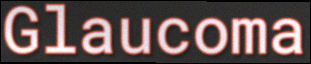
Glaucoma